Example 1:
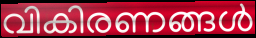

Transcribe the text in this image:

വികിരണങ്ങൾ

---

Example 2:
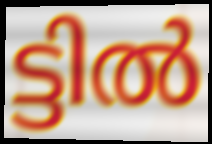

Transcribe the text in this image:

ട്ടിൽ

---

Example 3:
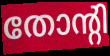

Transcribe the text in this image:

തോന്റി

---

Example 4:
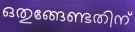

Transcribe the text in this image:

ഒതുങ്ങേണ്ടതിന്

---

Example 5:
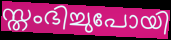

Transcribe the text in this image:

സ്തംഭിച്ചുപോയി